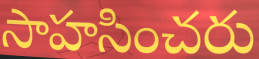
సాహసించరు